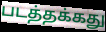
படத்தக்கது